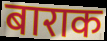
बाराक